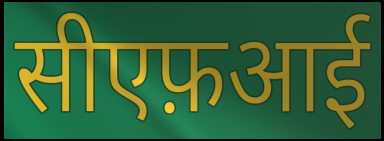
सीएफ़आई